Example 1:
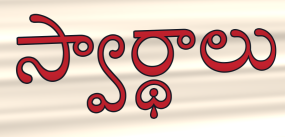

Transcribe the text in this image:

స్వార్థాలు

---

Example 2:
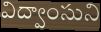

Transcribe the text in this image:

విద్వాంసుని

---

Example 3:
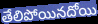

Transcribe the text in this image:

తేలిపోయినదోయి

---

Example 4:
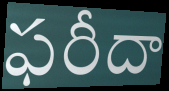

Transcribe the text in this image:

ఫరీదా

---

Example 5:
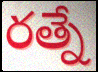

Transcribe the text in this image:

రత్నే